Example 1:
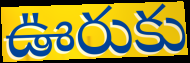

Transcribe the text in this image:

ఊరుకు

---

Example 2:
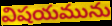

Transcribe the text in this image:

విషయమును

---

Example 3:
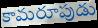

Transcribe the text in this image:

కామరూపుడు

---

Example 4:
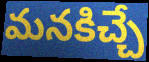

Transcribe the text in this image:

మనకిచ్చే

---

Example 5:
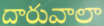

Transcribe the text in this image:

దారువాలా